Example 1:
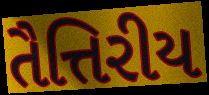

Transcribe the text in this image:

તૈત્તિરીય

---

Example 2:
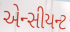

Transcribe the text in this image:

એન્સીયન્ટ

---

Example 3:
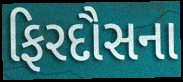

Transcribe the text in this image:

ફિરદૌસના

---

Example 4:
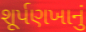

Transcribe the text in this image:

શૂર્પણખાનું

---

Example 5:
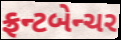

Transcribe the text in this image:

ફ્રન્ટબેન્ચર